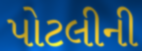
પોટલીની